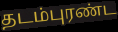
தடம்புரண்ட